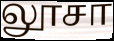
லூசா